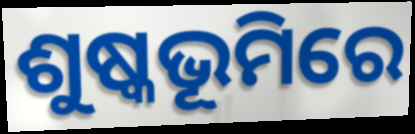
ଶୁଷ୍କଭୂମିରେ